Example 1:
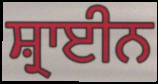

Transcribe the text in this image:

ਸ਼੍ਰਾਈਨ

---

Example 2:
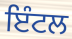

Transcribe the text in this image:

ਇੰਟਲ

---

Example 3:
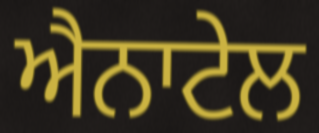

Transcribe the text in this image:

ਐਨਾਟੇਲ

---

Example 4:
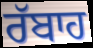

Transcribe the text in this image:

ਰੱਬਾਹ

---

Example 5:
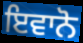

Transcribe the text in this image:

ਇਵਾਨੋ